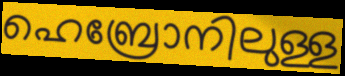
ഹെബ്രോനിലുള്ള